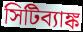
সিটিব্যাঙ্ক